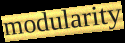
modularity